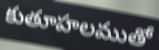
కుతూహలముతో